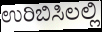
ಉರಿಬಿಸಿಲಲ್ಲಿ